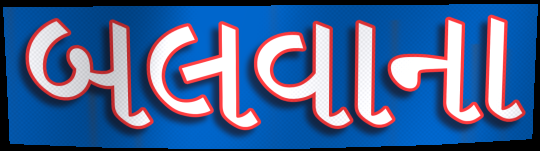
બલવાના